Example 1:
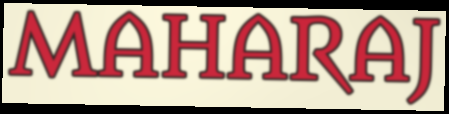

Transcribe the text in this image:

MAHARAJ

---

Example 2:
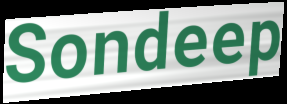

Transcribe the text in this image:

Sondeep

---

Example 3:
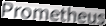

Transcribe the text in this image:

Prometheus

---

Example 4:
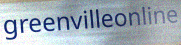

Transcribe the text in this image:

greenvilleonline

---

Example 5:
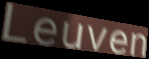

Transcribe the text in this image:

Leuven